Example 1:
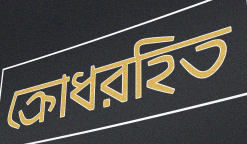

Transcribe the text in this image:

ক্রোধরহিত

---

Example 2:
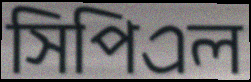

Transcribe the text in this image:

সিপিএল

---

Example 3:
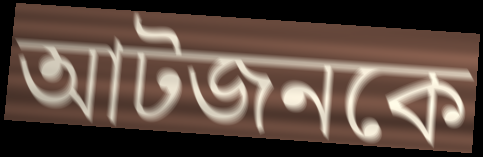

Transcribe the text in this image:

আটজনকে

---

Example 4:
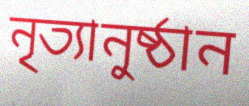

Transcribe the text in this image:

নৃত্যানুষ্ঠান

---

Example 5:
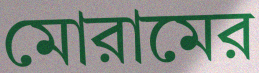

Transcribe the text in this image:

মোরামের